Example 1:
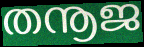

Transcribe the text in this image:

തനൂജ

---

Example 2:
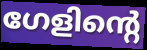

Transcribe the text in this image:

ഗേളിന്റെ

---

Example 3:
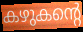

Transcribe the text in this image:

കഴുകന്റെ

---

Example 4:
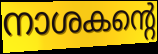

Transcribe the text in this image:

നാശകന്റെ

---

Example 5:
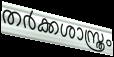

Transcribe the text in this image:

തർക്കശാസ്ത്രം